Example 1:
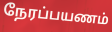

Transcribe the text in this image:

நேரப்பயணம்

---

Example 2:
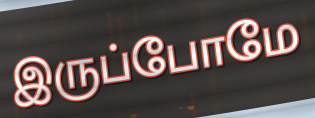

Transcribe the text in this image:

இருப்போமே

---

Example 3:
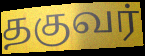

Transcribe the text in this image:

தகுவர்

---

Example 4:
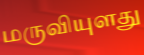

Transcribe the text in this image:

மருவியுளது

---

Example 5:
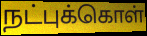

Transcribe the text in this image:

நட்புக்கொள்